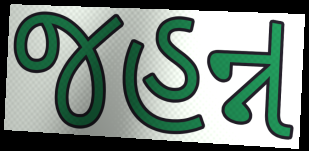
જહન્ન